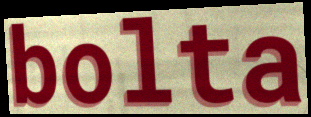
bolta